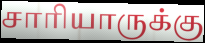
சாரியாருக்கு